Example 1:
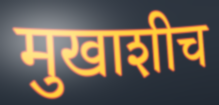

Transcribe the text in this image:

मुखाशीच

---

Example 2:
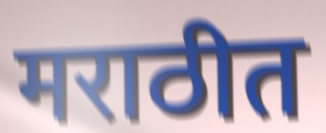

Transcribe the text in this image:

मराठीत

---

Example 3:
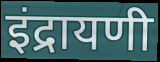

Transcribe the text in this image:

इंद्रायणी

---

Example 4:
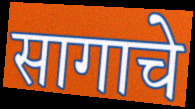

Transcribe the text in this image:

सागाचे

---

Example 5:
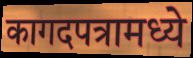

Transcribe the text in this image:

कागदपत्रामध्ये